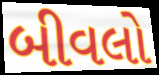
બીવલો